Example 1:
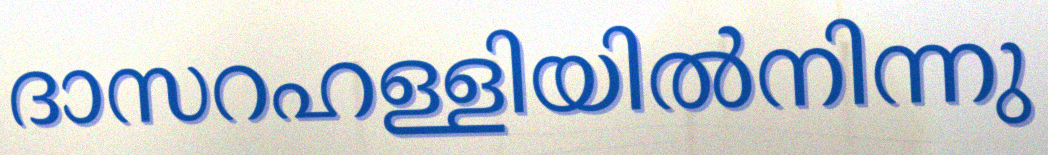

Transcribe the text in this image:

ദാസറഹള്ളിയിൽനിന്നു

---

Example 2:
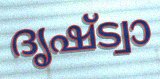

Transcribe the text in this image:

ദൃഷ്ട്വാ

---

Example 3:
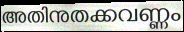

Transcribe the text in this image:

അതിനുതക്കവണ്ണം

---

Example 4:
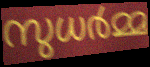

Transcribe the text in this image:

സുധർമ്മ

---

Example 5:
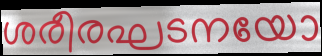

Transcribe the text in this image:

ശരീരഘടനയോ